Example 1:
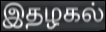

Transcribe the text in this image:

இதழகல்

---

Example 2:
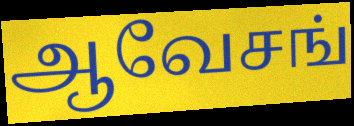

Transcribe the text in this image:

ஆவேசங்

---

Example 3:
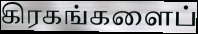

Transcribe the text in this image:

கிரகங்களைப்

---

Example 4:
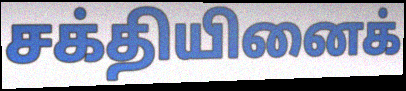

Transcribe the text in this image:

சக்தியினைக்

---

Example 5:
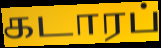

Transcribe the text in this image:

கடாரப்